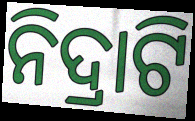
ନିଦ୍ରାଟି